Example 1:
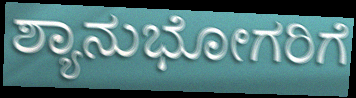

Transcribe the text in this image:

ಶ್ಯಾನುಭೋಗರಿಗೆ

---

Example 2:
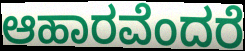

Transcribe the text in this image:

ಆಹಾರವೆಂದರೆ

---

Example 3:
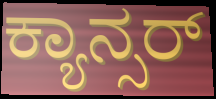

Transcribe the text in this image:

ಕ್ಯಾನ್ಸರ್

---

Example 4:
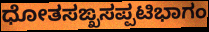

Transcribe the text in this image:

ಧೋತಸಙ್ಖಸಪ್ಪಟಿಭಾಗಂ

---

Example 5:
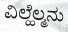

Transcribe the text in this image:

ವಿಲ್ಹೆಲ್ಮನು